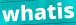
whatis